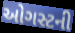
ઓગસ્ટની